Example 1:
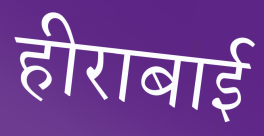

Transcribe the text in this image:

हीराबाई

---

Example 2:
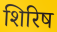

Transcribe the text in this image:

शिरिष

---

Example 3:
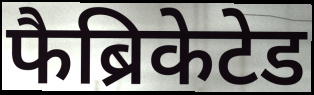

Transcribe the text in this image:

फैब्रिकेटेड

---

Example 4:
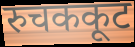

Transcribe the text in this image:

रुचककूट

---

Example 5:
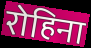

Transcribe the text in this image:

रोहिना